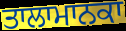
ਤਾਲਾਮਾਨਕਾ